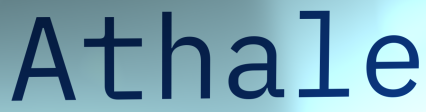
Athale